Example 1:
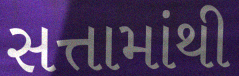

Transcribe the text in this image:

સત્તામાંથી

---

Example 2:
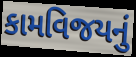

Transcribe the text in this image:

કામવિજયનું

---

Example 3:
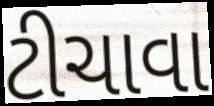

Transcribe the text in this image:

ટીચાવા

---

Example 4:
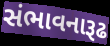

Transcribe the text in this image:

સંભાવનારૂઢ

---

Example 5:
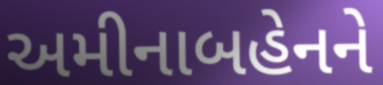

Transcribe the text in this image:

અમીનાબહેનને